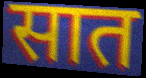
सात